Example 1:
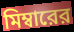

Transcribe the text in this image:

মিম্বারের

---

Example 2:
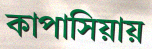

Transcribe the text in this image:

কাপাসিয়ায়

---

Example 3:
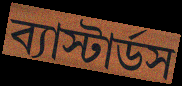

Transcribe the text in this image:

ব্যাস্টার্ডস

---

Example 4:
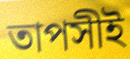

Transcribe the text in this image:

তাপসীই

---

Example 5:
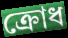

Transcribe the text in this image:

ক্রোধ